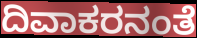
ದಿವಾಕರನಂತೆ